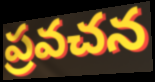
ప్రవచన